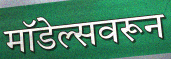
मॉडेल्सवरून